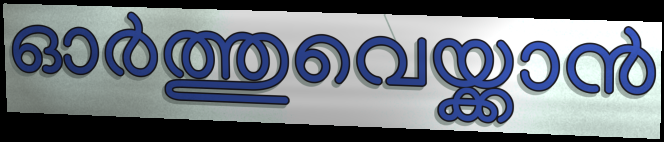
ഓർത്തുവെയ്ക്കാൻ